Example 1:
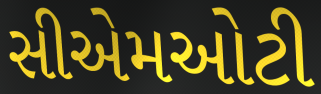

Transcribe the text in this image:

સીએમઓટી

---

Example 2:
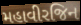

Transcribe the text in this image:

મહાવીરજિન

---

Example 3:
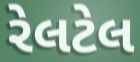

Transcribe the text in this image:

રેલટેલ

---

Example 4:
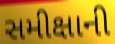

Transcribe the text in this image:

સમીક્ષાની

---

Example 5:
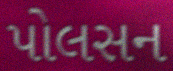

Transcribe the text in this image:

પોલસન